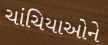
ચાંચિયાઓને